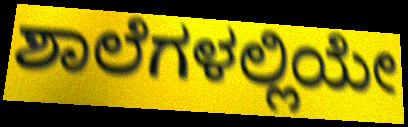
ಶಾಲೆಗಳಲ್ಲಿಯೇ